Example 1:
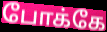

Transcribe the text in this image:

போக்கே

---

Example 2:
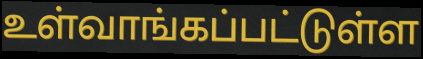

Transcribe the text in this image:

உள்வாங்கப்பட்டுள்ள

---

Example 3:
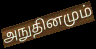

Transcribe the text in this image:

அநுதினமும்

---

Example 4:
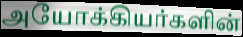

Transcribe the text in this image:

அயோக்கியர்களின்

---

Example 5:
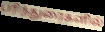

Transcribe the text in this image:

பரிந்துரைகளில்